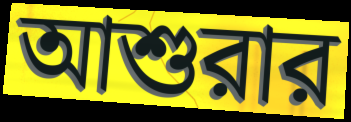
আশুরার